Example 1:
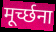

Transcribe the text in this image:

मूर्च्छना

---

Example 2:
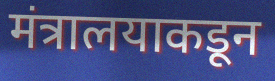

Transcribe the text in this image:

मंत्रालयाकडून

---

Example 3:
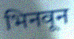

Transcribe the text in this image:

भिनवून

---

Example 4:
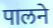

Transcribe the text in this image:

पालने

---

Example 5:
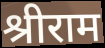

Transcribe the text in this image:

श्रीराम